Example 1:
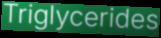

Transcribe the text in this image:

Triglycerides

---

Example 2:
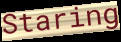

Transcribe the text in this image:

Staring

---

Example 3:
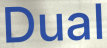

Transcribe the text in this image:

Dual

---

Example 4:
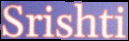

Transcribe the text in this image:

Srishti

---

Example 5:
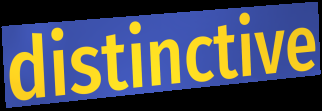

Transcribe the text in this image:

distinctive